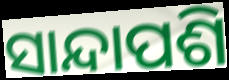
ସାନ୍ଦାପଶି